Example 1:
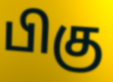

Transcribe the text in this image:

பிகு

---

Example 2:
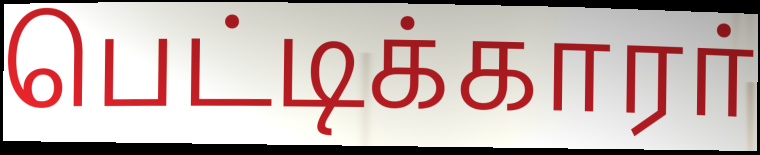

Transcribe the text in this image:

பெட்டிக்காரர்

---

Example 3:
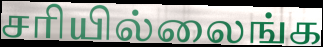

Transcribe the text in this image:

சரியில்லைங்க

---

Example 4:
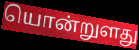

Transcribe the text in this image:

யொன்றுளது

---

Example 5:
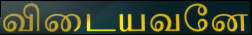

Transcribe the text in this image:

விடையவனே